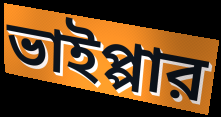
ভাইপ্পার